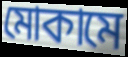
মোকামে